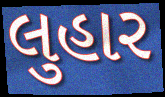
લુહાર